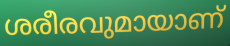
ശരീരവുമായാണ്